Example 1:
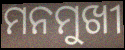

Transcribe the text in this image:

ମନମୁଖୀ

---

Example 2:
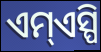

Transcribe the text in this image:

ଏମ୍ଏସ୍ପି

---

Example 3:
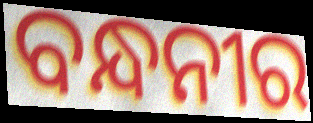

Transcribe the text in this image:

ବନ୍ଧନୀର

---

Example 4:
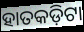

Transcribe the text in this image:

ହାତକଡ଼ିଟା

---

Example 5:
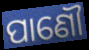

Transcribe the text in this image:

ପାଣୌ